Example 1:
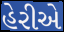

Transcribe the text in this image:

હેરીએ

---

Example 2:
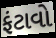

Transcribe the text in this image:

ફંટાવો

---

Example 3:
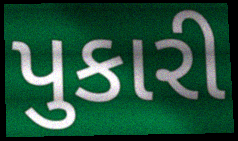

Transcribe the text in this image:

પુકારી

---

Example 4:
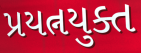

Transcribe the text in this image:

પ્રયત્નયુક્ત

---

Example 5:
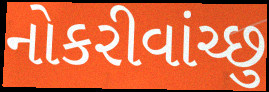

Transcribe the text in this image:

નોકરીવાંચ્છુ